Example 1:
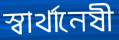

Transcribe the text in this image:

স্বার্থানেষী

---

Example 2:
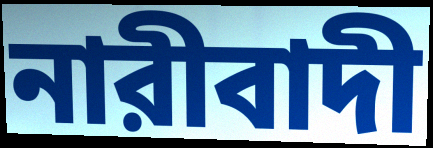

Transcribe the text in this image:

নারীবাদী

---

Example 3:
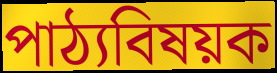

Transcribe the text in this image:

পাঠ্যবিষয়ক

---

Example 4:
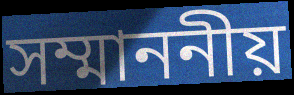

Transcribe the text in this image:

সম্মাননীয়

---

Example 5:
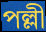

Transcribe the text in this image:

পল্লী